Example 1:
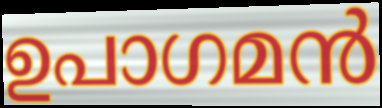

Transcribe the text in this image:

ഉപാഗമൻ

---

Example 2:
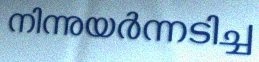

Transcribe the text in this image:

നിന്നുയർന്നടിച്ച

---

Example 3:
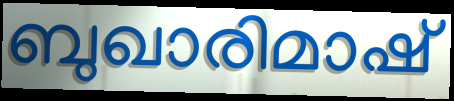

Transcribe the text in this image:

ബുഖാരിമാഷ്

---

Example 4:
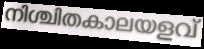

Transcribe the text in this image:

നിശ്ചിതകാലയളവ്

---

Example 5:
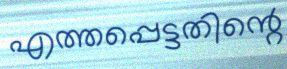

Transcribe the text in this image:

എത്തപ്പെട്ടതിന്റെ